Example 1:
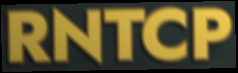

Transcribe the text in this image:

RNTCP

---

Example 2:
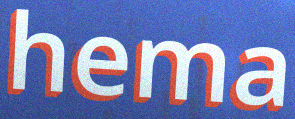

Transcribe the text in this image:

hema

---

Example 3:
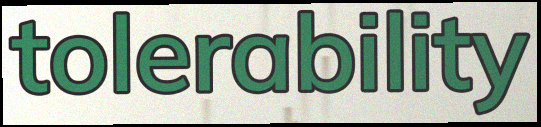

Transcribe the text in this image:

tolerability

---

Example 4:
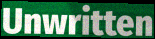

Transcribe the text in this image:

Unwritten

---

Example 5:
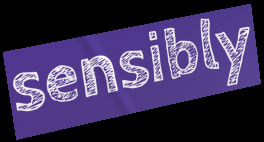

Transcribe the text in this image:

sensibly